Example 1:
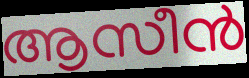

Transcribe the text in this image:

ആസീൻ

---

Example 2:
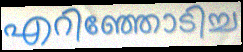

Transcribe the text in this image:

എറിഞ്ഞോടിച്ച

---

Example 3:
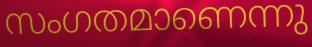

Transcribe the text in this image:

സംഗതമാണെന്നു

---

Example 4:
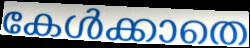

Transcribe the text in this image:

കേൾക്കാതെ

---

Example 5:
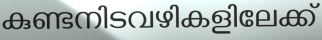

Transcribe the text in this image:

കുണ്ടനിടവഴികളിലേക്ക്